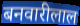
बनवारीलाल